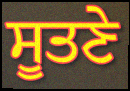
ਸੂਤਣੇ